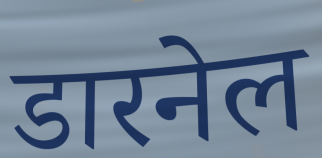
डारनेल